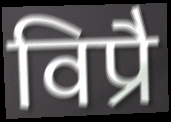
विप्रै